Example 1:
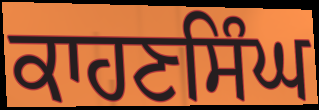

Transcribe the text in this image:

ਕਾਹਣਸਿੰਘ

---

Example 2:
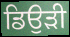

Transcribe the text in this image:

ਡਿਉੜੀ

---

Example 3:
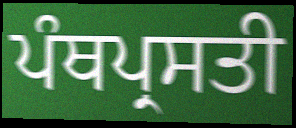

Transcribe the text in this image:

ਪੰਥਪ੍ਰਸਤੀ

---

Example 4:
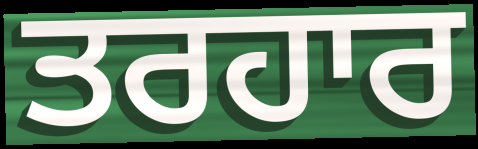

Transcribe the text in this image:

ਤਰਹਾਰ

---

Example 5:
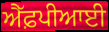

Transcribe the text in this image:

ਐੱਫ਼ਪੀਆਈ